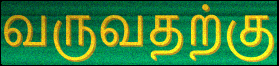
வருவதற்கு